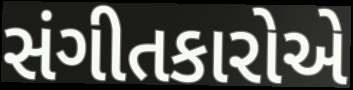
સંગીતકારોએ